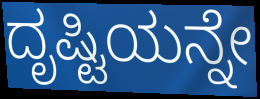
ದೃಷ್ಟಿಯನ್ನೇ